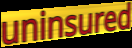
uninsured